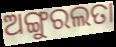
ଅଙ୍ଗୁରଲତା